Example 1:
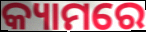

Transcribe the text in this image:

କ୍ୟାମରେ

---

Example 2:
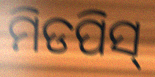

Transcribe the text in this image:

ମିଡପିସ୍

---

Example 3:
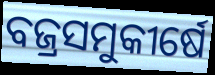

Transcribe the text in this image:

ବଜ୍ରସମୁକୀର୍ଷେ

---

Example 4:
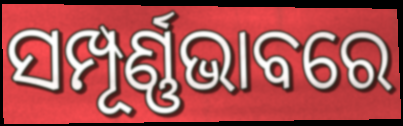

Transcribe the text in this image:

ସମ୍ପୂର୍ଣ୍ଣଭାବରେ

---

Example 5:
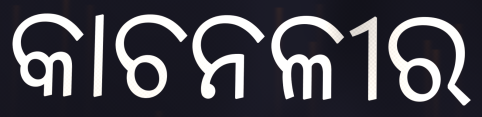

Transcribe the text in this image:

କାଚନଳୀର